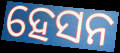
ହେସନ